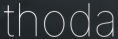
thoda